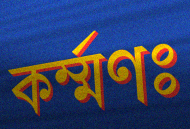
কর্ম্মণঃ